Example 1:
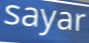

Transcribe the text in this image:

sayar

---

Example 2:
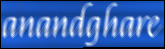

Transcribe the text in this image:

anandghare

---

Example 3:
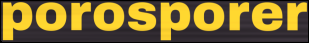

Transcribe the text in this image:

porosporer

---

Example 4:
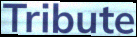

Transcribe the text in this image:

Tribute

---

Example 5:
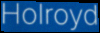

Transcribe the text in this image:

Holroyd